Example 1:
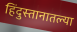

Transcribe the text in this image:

हिंदुस्तानातल्या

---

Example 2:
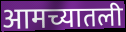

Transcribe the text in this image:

आमच्यातली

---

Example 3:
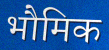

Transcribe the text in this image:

भौमिक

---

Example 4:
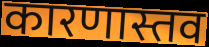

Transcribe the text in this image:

कारणास्तव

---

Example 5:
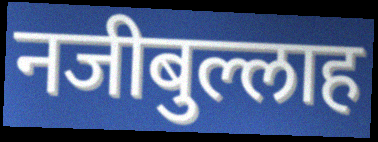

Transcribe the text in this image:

नजीबुल्लाह